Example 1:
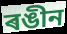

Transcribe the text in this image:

ৰঙীন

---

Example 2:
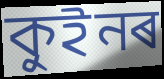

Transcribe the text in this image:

কুইনৰ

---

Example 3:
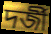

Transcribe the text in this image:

দৰ্জী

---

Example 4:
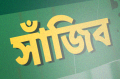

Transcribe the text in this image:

সাঁজিব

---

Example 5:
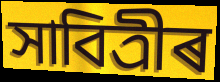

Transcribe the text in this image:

সাবিত্ৰীৰ